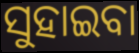
ସୁହାଇବା